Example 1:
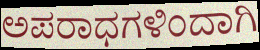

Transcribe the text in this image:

ಅಪರಾಧಗಳಿಂದಾಗಿ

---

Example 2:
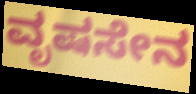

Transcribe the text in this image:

ವೃಷಸೇನ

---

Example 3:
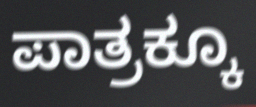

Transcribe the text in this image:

ಪಾತ್ರಕ್ಕೂ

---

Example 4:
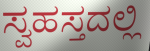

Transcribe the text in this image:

ಸ್ವಹಸ್ತದಲ್ಲಿ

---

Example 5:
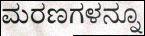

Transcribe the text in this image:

ಮರಣಗಳನ್ನೂ